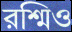
রশ্মিও